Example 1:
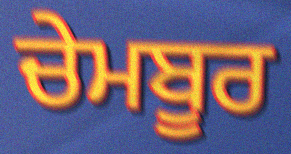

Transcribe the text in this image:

ਚੇਮਬੂਰ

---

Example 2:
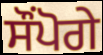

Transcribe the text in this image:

ਸੌਂਪੋਗੇ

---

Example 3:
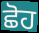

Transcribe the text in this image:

ਛੋਹ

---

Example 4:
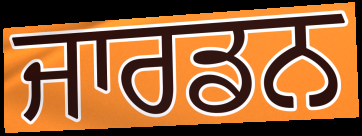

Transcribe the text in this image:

ਜਾਰਡਨ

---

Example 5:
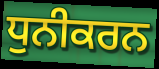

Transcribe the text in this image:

ਧੁਨੀਕਰਨ